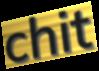
chit